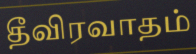
தீவிரவாதம்